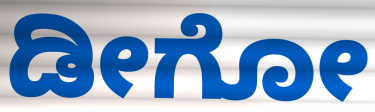
ಡೀಗೋ